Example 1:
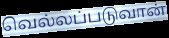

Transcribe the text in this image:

வெல்லப்படுவான்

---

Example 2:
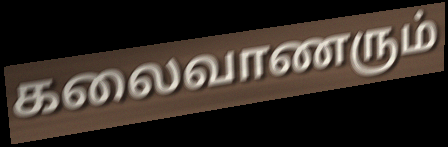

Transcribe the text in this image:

கலைவாணரும்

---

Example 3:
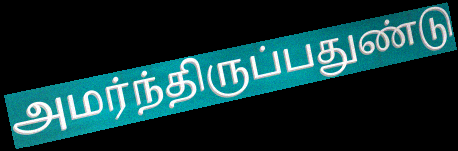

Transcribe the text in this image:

அமர்ந்திருப்பதுண்டு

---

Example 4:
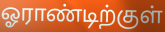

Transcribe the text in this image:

ஓராண்டிற்குள்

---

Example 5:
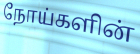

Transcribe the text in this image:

நோய்களின்